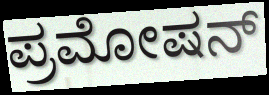
ಪ್ರಮೋಷನ್